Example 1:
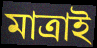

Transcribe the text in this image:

মাত্রাই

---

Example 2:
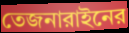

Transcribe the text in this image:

তেজনারাইনের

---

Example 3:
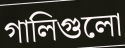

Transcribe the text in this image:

গালিগুলো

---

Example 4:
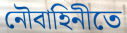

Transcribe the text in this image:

নৌবাহিনীতে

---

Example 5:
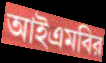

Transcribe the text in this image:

আইএমবির